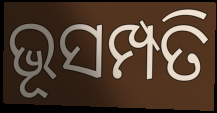
ଭୂସମ୍ପତି